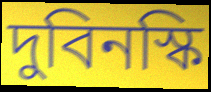
দুবিনস্কি